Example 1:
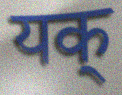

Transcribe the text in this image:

यक्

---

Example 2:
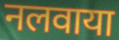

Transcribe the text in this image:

नलवाया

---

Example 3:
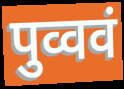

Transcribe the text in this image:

पुव्ववं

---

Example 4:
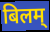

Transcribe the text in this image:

बिलम्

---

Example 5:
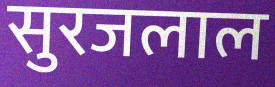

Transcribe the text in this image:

सुरजलाल